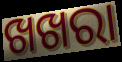
ଖଖରା